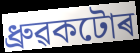
ধ্ৰুৱকটোৰ